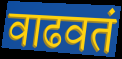
वाढवतं